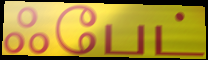
ஃபேட்